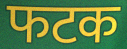
फटक